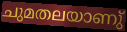
ചുമതലയാണു്